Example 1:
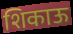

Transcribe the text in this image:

शिकाऊ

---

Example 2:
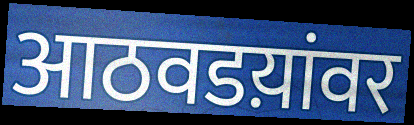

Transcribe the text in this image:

आठवडय़ांवर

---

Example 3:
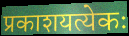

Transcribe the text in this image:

प्रकाशयत्येकः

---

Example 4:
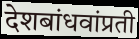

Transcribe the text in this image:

देशबांधवांप्रती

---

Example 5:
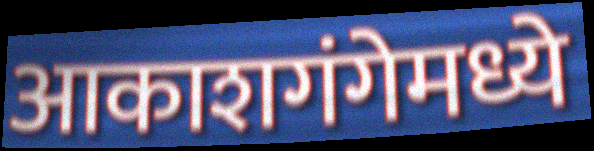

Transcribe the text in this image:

आकाशगंगेमध्ये